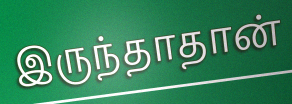
இருந்தாதான்